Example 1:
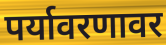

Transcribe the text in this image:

पर्यावरणावर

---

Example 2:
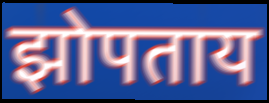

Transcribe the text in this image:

झोपताय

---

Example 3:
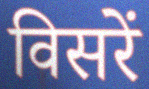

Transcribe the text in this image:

विसरें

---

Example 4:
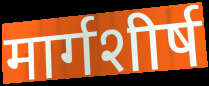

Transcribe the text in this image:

मार्गशीर्ष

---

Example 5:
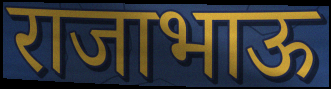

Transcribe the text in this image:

राजाभाऊ